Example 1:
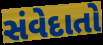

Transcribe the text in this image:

સંવેદાતો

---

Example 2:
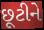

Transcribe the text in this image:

છૂટીને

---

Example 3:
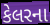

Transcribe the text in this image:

કેલરના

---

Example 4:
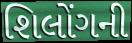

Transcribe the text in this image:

શિલોંગની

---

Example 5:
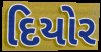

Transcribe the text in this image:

દિયોર